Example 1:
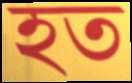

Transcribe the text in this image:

হত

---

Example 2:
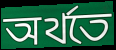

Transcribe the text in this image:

অৰ্থতে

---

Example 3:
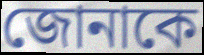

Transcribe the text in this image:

জোনাকে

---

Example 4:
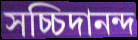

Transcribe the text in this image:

সচ্চিদানন্দ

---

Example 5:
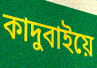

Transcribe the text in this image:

কাদুবাইয়ে